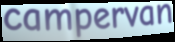
campervan